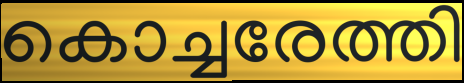
കൊച്ചരേത്തി